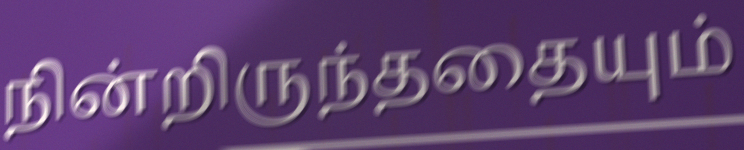
நின்றிருந்ததையும்